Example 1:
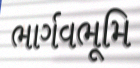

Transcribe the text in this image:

ભાર્ગવભૂમિ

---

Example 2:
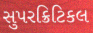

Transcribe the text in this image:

સુપરક્રિટિકલ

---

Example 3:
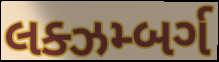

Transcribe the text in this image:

લક્ઝમ્બર્ગ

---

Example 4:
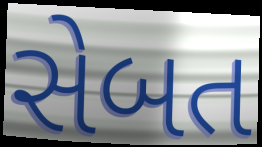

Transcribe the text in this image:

સેબત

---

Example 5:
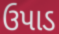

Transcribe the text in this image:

ઉપાડ